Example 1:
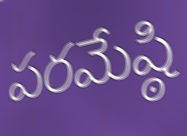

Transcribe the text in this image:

పరమేష్ఠి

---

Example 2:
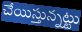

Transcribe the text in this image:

చేయిస్తున్నట్టు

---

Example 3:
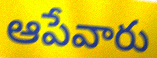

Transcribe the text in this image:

ఆపేవారు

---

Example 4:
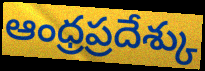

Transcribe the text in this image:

ఆంధ్రప్రదేశ్కు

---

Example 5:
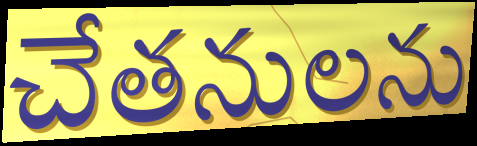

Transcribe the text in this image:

చేతనులను